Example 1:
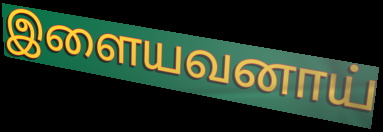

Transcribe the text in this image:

இளையவனாய்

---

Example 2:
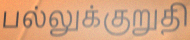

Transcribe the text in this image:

பல்லுக்குறுதி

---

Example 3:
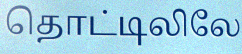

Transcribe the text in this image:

தொட்டிலிலே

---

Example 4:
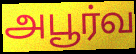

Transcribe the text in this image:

அபூர்வ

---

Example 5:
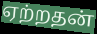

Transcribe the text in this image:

ஏற்றதன்